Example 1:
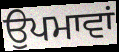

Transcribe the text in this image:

ਉਪਮਾਵਾਂ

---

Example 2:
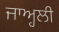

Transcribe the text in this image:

ਜਾਅ੍ਹਲੀ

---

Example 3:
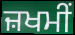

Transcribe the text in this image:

ਜ਼ਖਮੀਂ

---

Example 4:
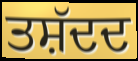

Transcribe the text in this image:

ਤਸ਼ੱਦਦ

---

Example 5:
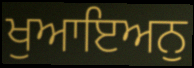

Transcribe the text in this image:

ਖੁਆਇਅਨੁ